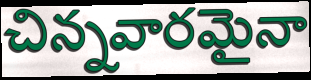
చిన్నవారమైనా